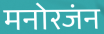
मनोरजंन